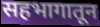
सहभागातून